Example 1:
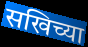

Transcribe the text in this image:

सखिच्या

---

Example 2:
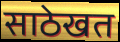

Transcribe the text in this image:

साठेखत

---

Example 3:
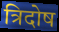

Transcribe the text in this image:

त्रिदोष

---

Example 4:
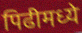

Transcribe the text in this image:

पिढीमध्ये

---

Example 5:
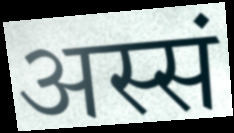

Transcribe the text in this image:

अस्सं